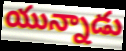
యున్నాడు